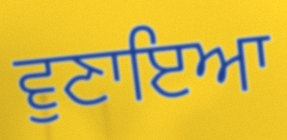
ਵੁਣਾਇਆ